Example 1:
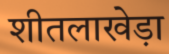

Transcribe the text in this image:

शीतलाखेड़ा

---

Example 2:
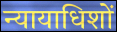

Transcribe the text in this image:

न्यायाधिशों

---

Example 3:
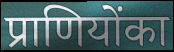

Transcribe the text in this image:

प्राणियोंका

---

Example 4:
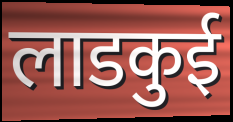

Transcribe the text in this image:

लाडकुई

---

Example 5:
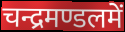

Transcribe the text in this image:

चन्द्रमण्डलमें